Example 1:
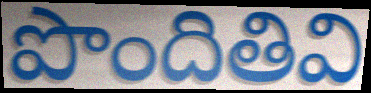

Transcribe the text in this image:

పొందితివి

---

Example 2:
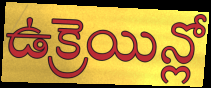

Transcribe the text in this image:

ఉక్రెయిన్లో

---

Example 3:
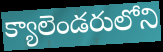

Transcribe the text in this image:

క్యాలెండరులోని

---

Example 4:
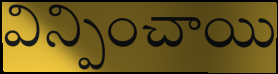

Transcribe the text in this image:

విన్పించాయి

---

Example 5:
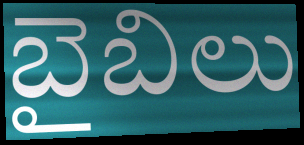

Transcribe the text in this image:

బైబిలు